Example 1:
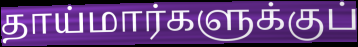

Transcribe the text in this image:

தாய்மார்களுக்குப்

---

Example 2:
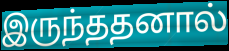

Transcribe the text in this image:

இருந்ததனால்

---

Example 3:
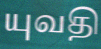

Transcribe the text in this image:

யுவதி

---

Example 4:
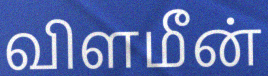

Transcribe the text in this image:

விளமீன்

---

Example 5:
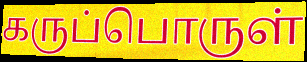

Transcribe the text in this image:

கருப்பொருள்